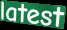
latest